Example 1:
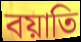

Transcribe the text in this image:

বয়াতি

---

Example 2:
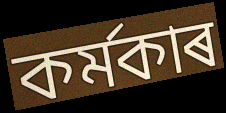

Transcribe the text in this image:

কৰ্মকাৰ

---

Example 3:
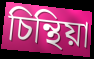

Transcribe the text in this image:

চিন্থিয়া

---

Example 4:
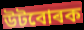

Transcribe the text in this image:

উটবোৰক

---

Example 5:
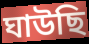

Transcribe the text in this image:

ঘাউছি